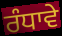
ਰੰਧਾਵੇ